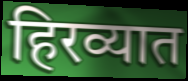
हिरव्यात